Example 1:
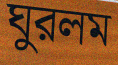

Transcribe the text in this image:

ঘুরলম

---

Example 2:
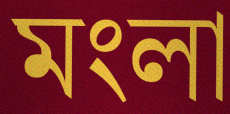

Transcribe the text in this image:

মংলা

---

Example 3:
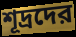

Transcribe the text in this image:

শূদ্রদের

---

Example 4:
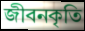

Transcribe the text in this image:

জীবনকৃতি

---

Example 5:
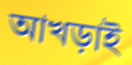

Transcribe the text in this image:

আখড়াই